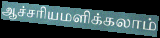
ஆச்சரியமளிக்கலாம்